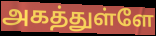
அகத்துள்ளே